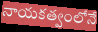
నాయకత్వంలోనే